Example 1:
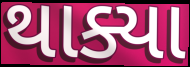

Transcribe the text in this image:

થાક્યા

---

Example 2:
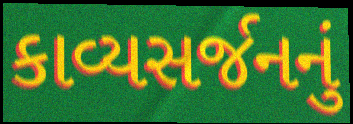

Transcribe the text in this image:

કાવ્યસર્જનનું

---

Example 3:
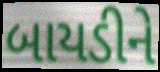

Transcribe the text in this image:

બાયડીને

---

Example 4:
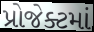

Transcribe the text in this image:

પ્રોજેક્ટમાં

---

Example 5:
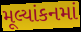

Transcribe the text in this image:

મૂલ્યાંકનમાં